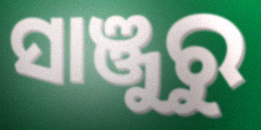
ସାଞ୍ଜୁରୁ